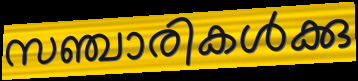
സഞ്ചാരികൾക്കു